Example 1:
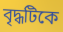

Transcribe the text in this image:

বৃদ্ধটিকে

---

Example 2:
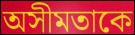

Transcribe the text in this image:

অসীমতাকে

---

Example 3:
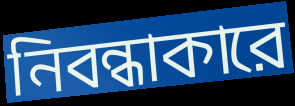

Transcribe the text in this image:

নিবন্ধাকারে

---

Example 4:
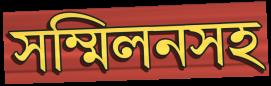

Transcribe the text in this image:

সম্মিলনসহ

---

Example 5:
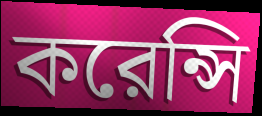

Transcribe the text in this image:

করেন্সি